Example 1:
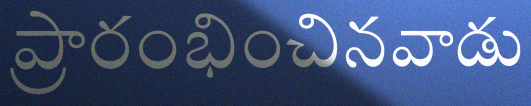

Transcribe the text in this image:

ప్రారంభించినవాడు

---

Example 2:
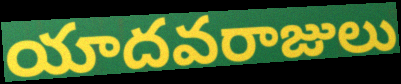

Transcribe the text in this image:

యాదవరాజులు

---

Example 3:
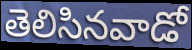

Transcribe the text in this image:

తెలిసినవాడో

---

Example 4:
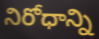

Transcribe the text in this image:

నిరోధాన్ని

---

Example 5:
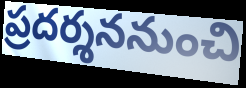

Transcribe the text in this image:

ప్రదర్శననుంచి